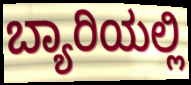
ಬ್ಯಾರಿಯಲ್ಲಿ